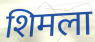
शिमला